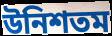
উনিশতম